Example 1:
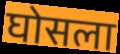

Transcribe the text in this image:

घोसला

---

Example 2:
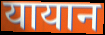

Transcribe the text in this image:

यायान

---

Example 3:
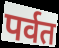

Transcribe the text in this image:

पर्वत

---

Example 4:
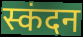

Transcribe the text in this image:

स्कंदन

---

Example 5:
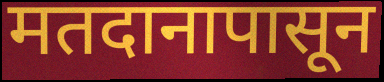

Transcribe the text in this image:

मतदानापासून